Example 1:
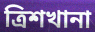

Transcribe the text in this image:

ত্রিশখানা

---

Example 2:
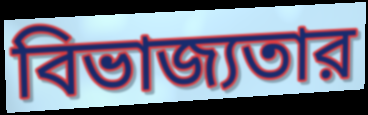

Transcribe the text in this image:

বিভাজ্যতার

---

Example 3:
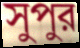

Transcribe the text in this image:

সুপুর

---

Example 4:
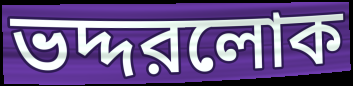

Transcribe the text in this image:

ভদ্দরলোক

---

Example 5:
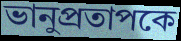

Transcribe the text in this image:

ভানুপ্রতাপকে